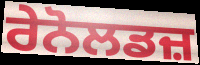
ਰੇਨੋਲਡਜ਼